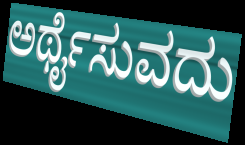
ಅರ್ಥೈಸುವದು